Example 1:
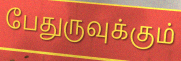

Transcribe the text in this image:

பேதுருவுக்கும்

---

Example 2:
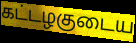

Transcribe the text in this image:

கட்டழகுடைய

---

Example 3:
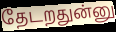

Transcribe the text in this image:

தேடறதுன்னு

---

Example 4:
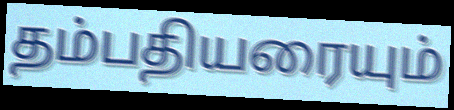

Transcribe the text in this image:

தம்பதியரையும்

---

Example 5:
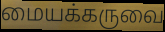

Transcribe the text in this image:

மையக்கருவை